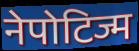
नेपोटिज्‍म